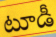
టూడీ